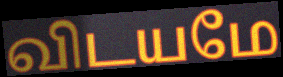
விடயமே